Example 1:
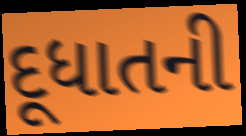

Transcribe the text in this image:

દૂધાતની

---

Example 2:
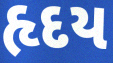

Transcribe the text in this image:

હૃદય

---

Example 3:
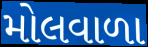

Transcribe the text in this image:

મોલવાળા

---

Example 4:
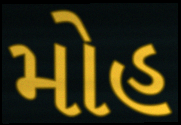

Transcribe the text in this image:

મોહ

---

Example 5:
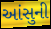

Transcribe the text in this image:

આંસુની